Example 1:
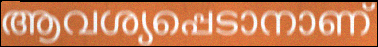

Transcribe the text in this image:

ആവശ്യപ്പെടാനാണ്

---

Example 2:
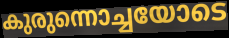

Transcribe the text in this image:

കുരുന്നൊച്ചയോടെ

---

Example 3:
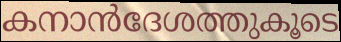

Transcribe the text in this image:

കനാൻദേശത്തുകൂടെ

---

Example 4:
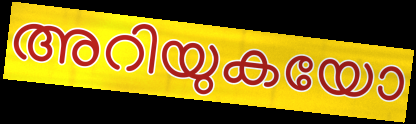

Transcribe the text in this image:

അറിയുകയോ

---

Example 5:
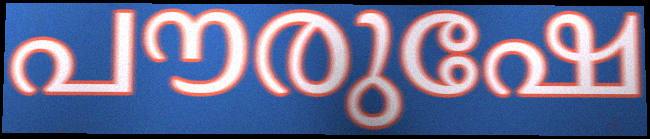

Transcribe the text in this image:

പൗരുഷേ